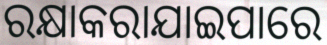
ରକ୍ଷାକରାଯାଇପାରେ